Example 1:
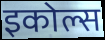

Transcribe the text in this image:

इकोल्स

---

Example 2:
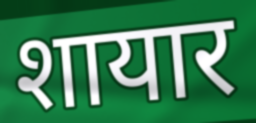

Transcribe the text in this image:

शायार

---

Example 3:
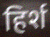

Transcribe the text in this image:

हिर्श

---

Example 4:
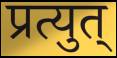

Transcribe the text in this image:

प्रत्युत्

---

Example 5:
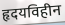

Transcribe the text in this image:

हृदयविहीन